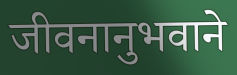
जीवनानुभवाने